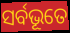
ସର୍ବଭୂତେ